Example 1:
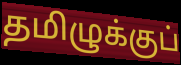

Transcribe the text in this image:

தமிழுக்குப்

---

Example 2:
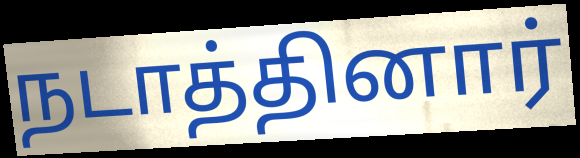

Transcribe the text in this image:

நடாத்தினார்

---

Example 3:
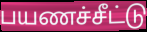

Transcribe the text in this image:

பயணச்சீட்டு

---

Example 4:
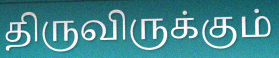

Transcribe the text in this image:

திருவிருக்கும்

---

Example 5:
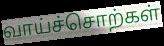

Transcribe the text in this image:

வாய்ச்சொற்கள்